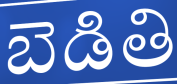
బెడితి